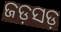
ଜଡ଼ସଡ଼